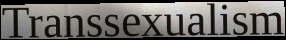
Transsexualism